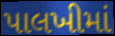
પાલખીમાં